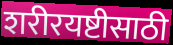
शरीरयष्टीसाठी